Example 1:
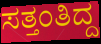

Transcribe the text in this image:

ಸತ್ತಂತಿದ್ದ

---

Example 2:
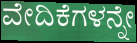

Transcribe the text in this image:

ವೇದಿಕೆಗಳನ್ನೇ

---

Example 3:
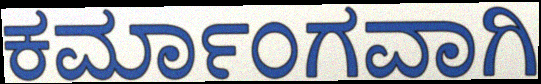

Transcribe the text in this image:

ಕರ್ಮಾಂಗವಾಗಿ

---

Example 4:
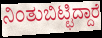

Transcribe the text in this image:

ನಿಂತುಬಿಟ್ಟಿದ್ದಾರೆ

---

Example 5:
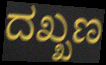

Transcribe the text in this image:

ದಖ್ಖಣ